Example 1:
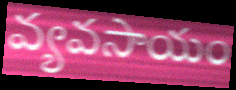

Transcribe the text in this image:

వ్యవసాయం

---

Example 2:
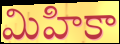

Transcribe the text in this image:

మిహికా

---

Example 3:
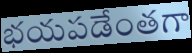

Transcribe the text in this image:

భయపడేంతగా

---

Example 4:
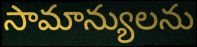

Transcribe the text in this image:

సామాన్యులను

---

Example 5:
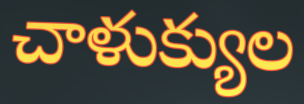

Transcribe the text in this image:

చాళుక్యుల